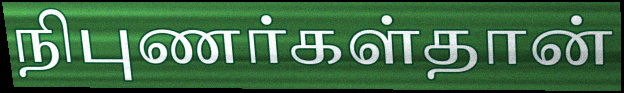
நிபுணர்கள்தான்